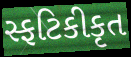
સ્ફટિકીકૃત